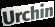
Urchin